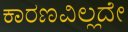
ಕಾರಣವಿಲ್ಲದೇ